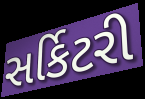
સર્કિટરી